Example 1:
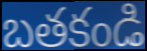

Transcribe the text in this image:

బతకండి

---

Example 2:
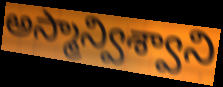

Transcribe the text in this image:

అస్మాన్విశ్వాని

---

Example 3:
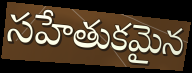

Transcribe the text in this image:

సహేతుకమైన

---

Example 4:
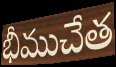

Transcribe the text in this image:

భీముచేత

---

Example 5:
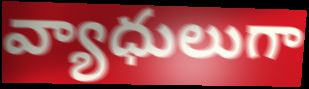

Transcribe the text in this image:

వ్యాధులుగా